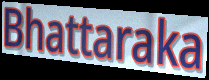
Bhattaraka